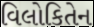
વિલોકિતેન